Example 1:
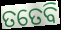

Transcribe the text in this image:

ତତେବି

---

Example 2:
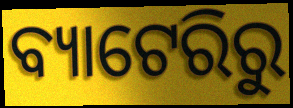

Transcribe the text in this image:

ବ୍ୟାଟେରିରୁ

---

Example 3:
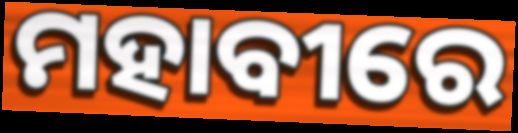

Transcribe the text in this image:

ମହାବୀରେ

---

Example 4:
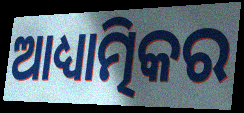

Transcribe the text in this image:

ଆଧ୍ୟାତ୍ମିକର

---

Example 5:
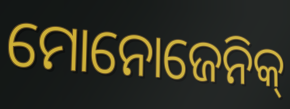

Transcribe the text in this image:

ମୋନୋଜେନିକ୍